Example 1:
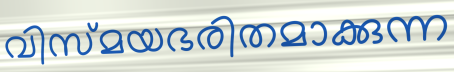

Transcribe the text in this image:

വിസ്മയഭരിതമാക്കുന്ന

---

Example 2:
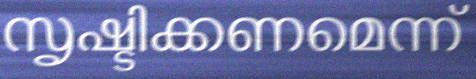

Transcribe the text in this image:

സൃഷ്ടിക്കണമെന്ന്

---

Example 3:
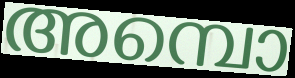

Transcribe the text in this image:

അമ്പൊ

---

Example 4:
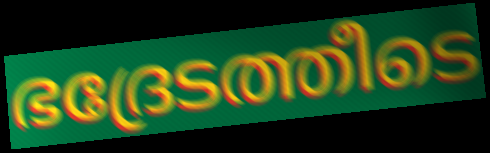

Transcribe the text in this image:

ഭദ്രേടത്തീടെ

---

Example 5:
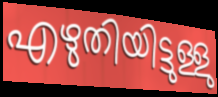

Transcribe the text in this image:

എഴുതിയിട്ടുള്ളു